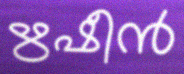
ഋഷീൻ